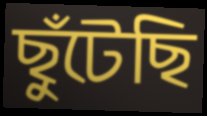
ছুঁটেছি